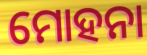
ମୋହନା